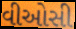
વીઓસી